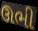
ઊભી